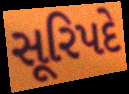
સૂરિપદે